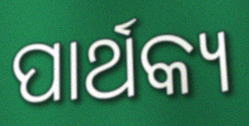
ପାର୍ଥକ୍ୟ